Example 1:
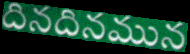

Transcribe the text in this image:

దినదినమున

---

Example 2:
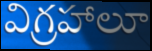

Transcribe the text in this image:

విగ్రహాలూ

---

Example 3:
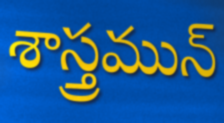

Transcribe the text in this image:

శాస్త్రమున్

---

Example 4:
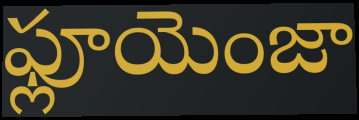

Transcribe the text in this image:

ఫ్లూయెంజా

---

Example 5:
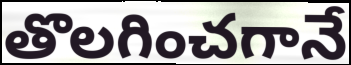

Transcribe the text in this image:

తొలగించగానే